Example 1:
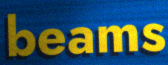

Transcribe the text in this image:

beams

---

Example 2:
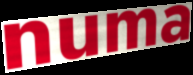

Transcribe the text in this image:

numa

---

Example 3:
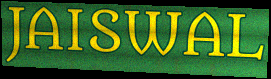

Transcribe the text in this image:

JAISWAL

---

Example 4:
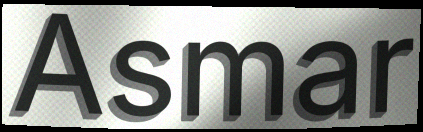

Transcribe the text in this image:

Asmar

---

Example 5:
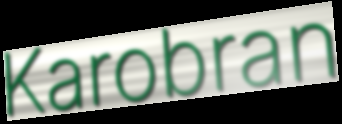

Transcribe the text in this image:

Karobran